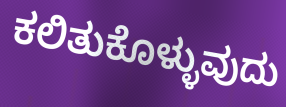
ಕಲಿತುಕೊಳ್ಳುವುದು